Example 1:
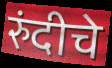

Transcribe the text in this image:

रुंदीचे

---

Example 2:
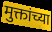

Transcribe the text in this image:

मुक्तांच्या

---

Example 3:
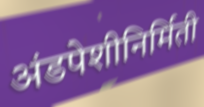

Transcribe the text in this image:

अंडपेशीनिर्मिती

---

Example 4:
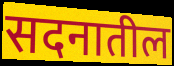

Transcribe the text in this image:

सदनातील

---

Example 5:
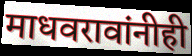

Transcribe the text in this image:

माधवरावांनीही